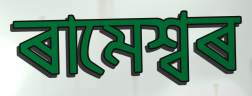
ৰামেশ্বৰ